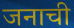
जनाची